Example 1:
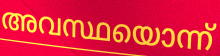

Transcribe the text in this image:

അവസ്ഥയൊന്ന്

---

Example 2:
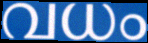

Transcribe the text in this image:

വധം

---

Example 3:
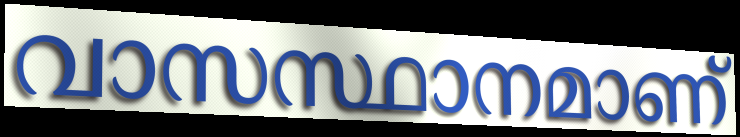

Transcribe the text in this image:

വാസസ്ഥാനമാണ്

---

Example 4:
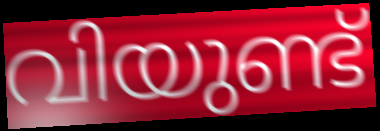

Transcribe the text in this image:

വിയുണ്ട്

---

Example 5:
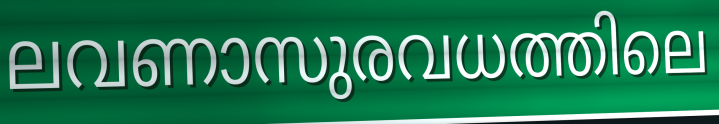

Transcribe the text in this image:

ലവണാസുരവധത്തിലെ